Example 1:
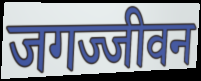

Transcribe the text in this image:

जगज्जीवन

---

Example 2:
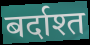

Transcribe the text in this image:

बर्दाश्त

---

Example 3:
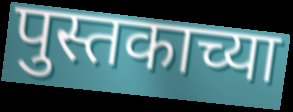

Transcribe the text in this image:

पुस्तकाच्या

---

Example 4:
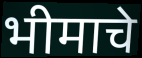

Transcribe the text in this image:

भीमाचे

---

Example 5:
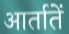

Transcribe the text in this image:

आर्तातें